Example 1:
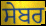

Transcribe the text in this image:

ਸੇਬਰ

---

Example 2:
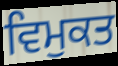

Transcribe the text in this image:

ਵਿਮੁਕਤ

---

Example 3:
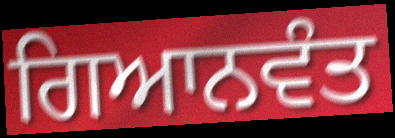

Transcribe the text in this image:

ਗਿਆਨਵੰਤ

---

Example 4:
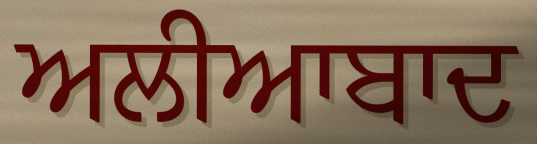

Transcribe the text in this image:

ਅਲੀਆਬਾਦ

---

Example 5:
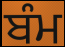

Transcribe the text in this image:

ਬੰਮ